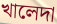
খালেদা